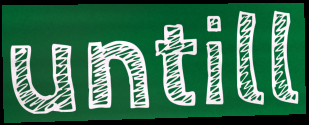
untill